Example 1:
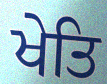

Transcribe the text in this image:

ਖੇਤਿ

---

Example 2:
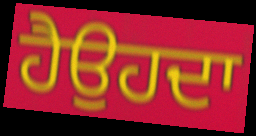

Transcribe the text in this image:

ਹੈਉਹਦਾ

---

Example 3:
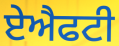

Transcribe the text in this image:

ਏਐਫਟੀ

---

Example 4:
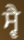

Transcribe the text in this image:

ਸ੍ਵੈ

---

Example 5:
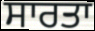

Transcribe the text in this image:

ਸਾਰਤਾ